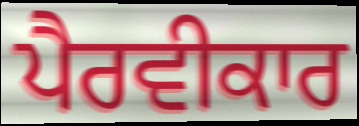
ਪੈਰਵੀਕਾਰ